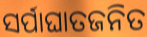
ସର୍ପାଘାତଜନିତ